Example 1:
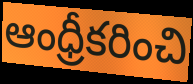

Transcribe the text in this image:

ఆంధ్రీకరించి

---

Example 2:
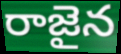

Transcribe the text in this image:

రాజైన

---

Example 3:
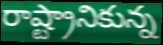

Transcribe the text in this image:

రాష్ట్రానికున్న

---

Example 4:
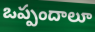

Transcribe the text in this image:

ఒప్పందాలూ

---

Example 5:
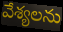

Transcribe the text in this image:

వేశ్యలను